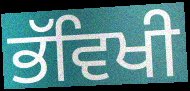
ਭੱਵਿਖੀ